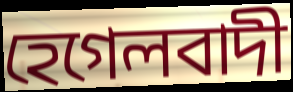
হেগেলবাদী